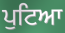
ਪੁਟਿਆ